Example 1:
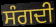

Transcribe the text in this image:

ਸੰਗਦੀ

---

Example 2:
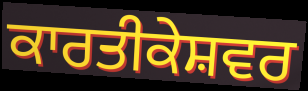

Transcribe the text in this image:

ਕਾਰਤੀਕੇਸ਼ਵਰ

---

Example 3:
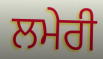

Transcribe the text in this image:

ਲਮੇਰੀ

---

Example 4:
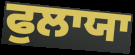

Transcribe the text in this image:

ਫੁਲਾਯਾ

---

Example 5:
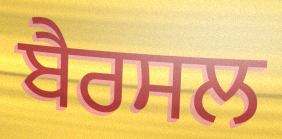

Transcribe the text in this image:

ਬੈਰਸਲ